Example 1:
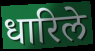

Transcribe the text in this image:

धारिले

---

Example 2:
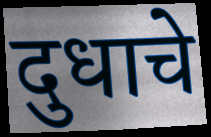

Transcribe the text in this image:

दुधाचे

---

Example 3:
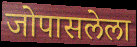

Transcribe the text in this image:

जोपासलेला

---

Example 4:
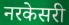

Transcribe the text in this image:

नरकेसरी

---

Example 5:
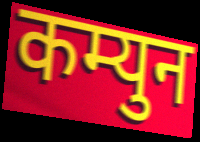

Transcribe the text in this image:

कम्युन